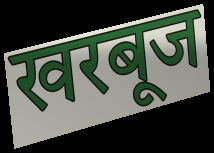
खरबूज